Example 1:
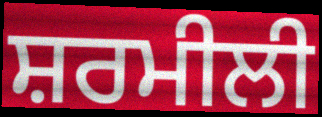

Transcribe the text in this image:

ਸ਼ਰਮੀਲੀ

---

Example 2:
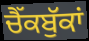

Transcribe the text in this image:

ਚੈੱਕਬੁੱਕਾਂ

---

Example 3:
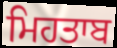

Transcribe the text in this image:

ਮਿਹਤਾਬ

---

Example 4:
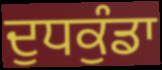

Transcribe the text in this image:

ਦੁਧਕੁੰਡਾ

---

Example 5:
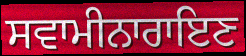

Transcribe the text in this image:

ਸਵਾਮੀਨਾਰਾਇਣ